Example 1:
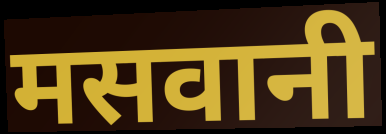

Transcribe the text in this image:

मसवानी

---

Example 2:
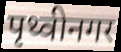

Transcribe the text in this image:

पृथ्वीनगर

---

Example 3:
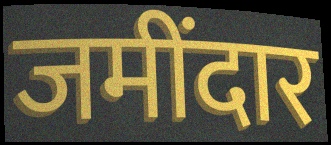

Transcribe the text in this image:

जमींदार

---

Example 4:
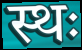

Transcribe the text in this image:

स्थः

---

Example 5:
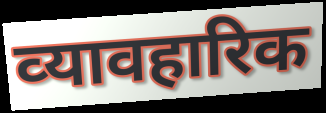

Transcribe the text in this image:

व्‍यावहारिक